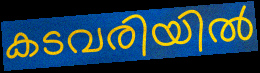
കടവരിയിൽ